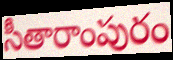
సీతారాంపురం